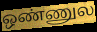
ஒண்ணுல